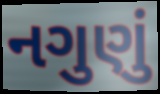
નગુણું